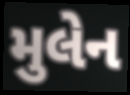
મુલેન